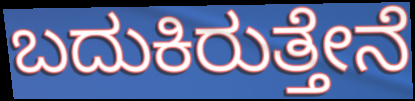
ಬದುಕಿರುತ್ತೇನೆ